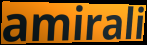
amirali